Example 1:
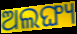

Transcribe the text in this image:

ଅଲଙ୍ଘ୍ୟ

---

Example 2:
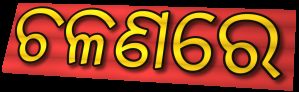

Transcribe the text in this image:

ଚଳଣରେ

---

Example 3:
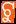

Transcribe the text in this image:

ଟୁ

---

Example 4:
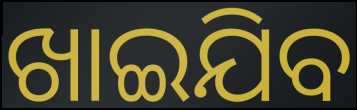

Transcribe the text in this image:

ଖାଇଯିବ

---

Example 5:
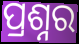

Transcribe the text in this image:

ପ୍ରଶ୍ନର